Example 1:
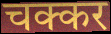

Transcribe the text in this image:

चक्‍कर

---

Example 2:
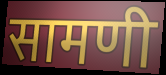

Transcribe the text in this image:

सामणी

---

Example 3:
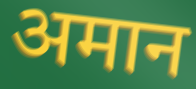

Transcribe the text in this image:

अमान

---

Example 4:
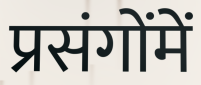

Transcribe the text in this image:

प्रसंगोंमें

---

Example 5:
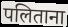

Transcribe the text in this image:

पलिताना